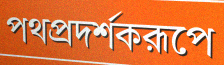
পথপ্রদর্শকরূপে